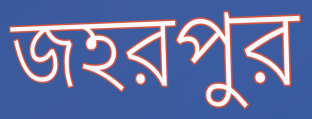
জহরপুর